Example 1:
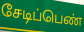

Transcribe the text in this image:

சேடிப்பெண்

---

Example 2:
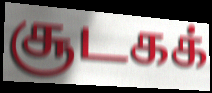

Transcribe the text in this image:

சூடகக்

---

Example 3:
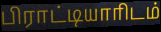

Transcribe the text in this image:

பிராட்டியாரிடம்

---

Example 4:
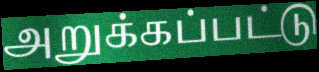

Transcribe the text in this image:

அறுக்கப்பட்டு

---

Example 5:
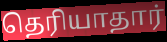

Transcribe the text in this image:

தெரியாதார்